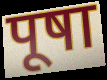
पूषा